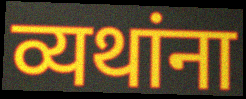
व्यथांना